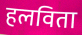
हलविता